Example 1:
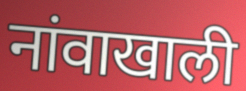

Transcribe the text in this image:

नांवाखाली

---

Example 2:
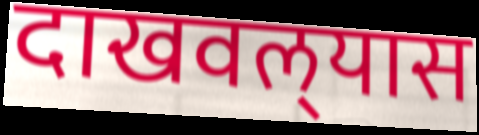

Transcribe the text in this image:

दाखवल्यास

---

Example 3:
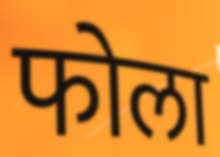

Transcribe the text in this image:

फोला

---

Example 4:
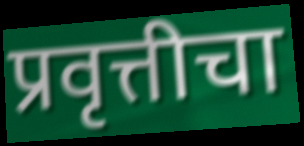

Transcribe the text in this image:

प्रवृत्तीचा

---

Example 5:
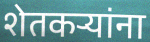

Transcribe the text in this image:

शेतकर्‍यांना